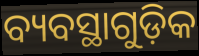
ବ୍ୟବସ୍ଥାଗୁଡ଼ିକ